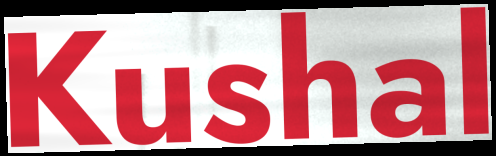
Kushal